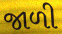
જાળી